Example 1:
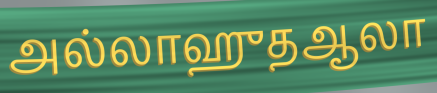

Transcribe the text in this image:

அல்லாஹுதஆலா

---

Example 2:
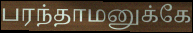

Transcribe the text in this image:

பரந்தாமனுக்கே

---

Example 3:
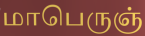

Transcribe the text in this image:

மாபெருஞ்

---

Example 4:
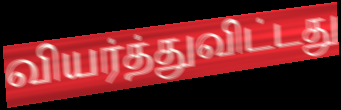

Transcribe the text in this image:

வியர்த்துவிட்டது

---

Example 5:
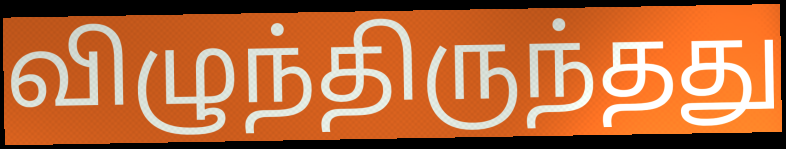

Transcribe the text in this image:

விழுந்திருந்தது